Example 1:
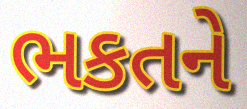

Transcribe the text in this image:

ભકતને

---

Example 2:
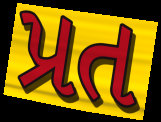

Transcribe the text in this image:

પ્રત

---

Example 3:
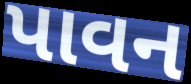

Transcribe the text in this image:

પાવન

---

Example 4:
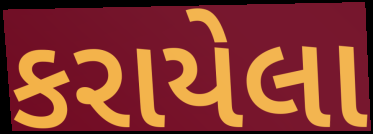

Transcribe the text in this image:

કરાયેલા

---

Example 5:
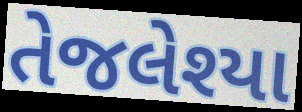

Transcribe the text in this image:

તેજલેશ્યા